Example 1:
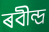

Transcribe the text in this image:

ৰবীন্দ্ৰ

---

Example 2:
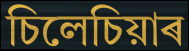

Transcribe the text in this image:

চিলেচিয়াৰ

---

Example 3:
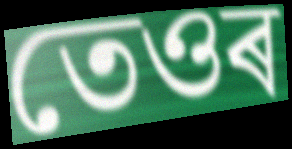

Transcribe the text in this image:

তেওৰ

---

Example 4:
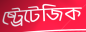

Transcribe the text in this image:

ষ্ট্ৰেটেজিক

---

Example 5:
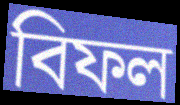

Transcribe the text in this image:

বিফল